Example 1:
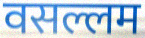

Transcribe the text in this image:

वसल्लम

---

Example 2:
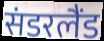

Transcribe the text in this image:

संडरलैंड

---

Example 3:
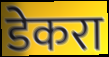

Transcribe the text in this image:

डेकरा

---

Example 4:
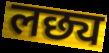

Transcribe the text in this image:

लछ्य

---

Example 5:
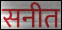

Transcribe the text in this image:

सनीत